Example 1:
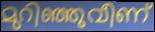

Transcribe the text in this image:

മുറിഞ്ഞുവീണ്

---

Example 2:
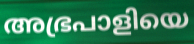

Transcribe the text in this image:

അഭ്രപാളിയെ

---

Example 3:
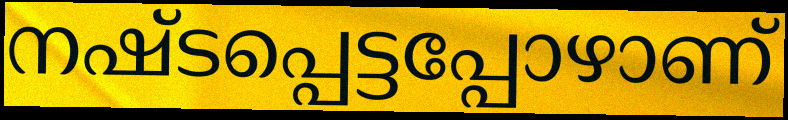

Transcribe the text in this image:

നഷ്ടപ്പെട്ടപ്പോഴാണ്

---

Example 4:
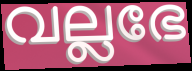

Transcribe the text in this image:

വല്ലഭേ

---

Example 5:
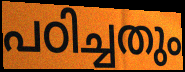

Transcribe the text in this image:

പഠിച്ചതും